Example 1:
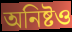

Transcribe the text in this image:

অনিষ্টও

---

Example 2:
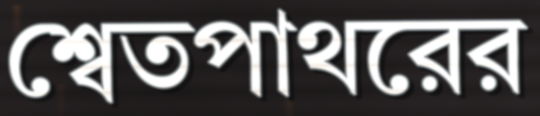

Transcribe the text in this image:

শ্বেতপাথরের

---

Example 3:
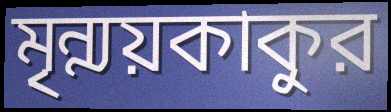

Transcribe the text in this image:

মৃন্ময়কাকুর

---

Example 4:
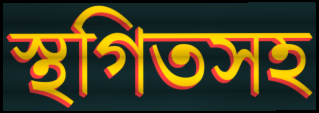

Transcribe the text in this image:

স্থগিতসহ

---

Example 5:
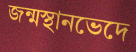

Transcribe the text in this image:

জন্মস্থানভেদে